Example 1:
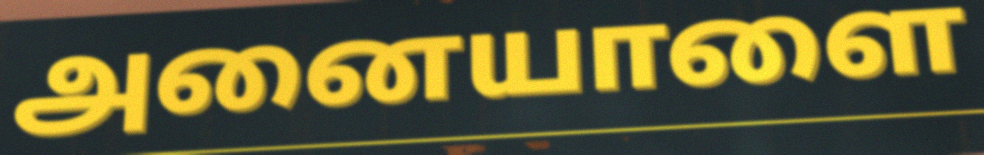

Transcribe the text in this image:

அனையாளை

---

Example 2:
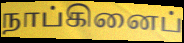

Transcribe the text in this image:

நாப்கினைப்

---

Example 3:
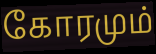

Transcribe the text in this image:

கோரமும்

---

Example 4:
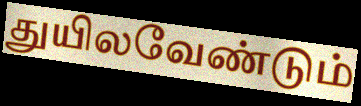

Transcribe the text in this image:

துயிலவேண்டும்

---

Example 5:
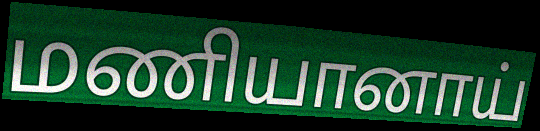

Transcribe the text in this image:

மணியானாய்